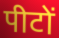
पीटों